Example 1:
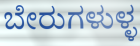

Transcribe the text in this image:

ಬೇರುಗಳುಳ್ಳ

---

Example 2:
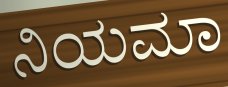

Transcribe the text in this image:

ನಿಯಮಾ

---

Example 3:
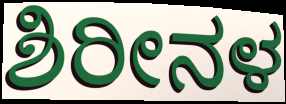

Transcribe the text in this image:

ಶಿರೀನಳ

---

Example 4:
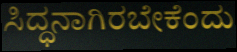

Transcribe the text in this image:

ಸಿದ್ಧನಾಗಿರಬೇಕೆಂದು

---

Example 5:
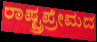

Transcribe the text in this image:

ರಾಷ್ಟ್ರಪ್ರೇಮದ